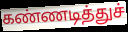
கண்ணடித்துச்